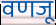
वणजू